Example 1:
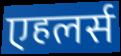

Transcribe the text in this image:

एहलर्स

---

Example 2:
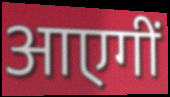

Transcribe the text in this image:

आएगीं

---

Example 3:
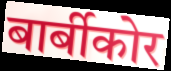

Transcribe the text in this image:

बार्बीकोर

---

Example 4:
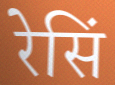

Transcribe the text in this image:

रेसिं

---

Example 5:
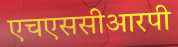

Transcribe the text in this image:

एचएससीआरपी